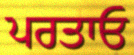
ਪਰਤਾਓ